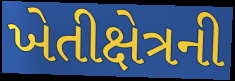
ખેતીક્ષેત્રની